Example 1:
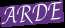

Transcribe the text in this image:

ARDE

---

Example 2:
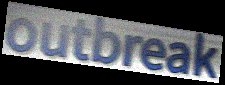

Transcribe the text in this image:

outbreak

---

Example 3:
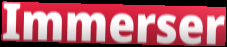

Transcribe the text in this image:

Immerser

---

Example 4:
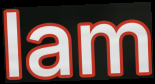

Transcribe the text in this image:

Iam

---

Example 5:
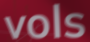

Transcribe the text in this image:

vols